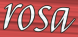
rosa